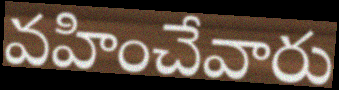
వహించేవారు